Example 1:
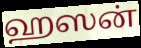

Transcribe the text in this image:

ஹஸன்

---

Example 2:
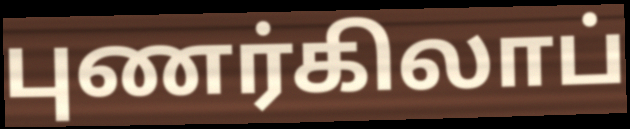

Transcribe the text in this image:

புணர்கிலாப்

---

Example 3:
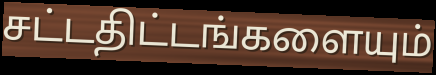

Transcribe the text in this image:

சட்டதிட்டங்களையும்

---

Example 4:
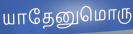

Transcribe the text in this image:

யாதேனுமொரு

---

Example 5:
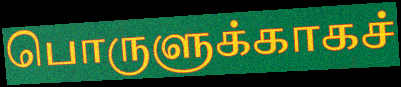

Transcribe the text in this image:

பொருளுக்காகச்